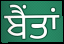
ਬੈਂਤਾਂ